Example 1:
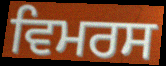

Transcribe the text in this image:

ਵਿਮਰਸ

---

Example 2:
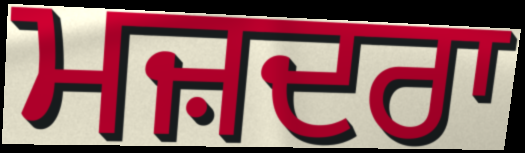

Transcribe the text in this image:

ਮਜ਼ਦਰਾ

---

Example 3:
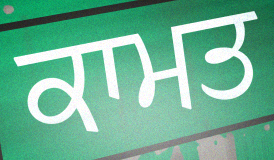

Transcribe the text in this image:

ਕਾਮਤ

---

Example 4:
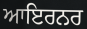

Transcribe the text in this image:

ਆਇਰਨਰ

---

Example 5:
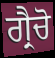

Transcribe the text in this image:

ਗ੍ਰੈਚੋ